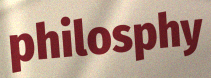
philosphy